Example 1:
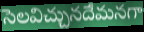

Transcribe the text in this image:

సెలవిచ్చునదేమనగా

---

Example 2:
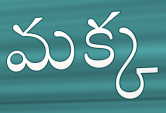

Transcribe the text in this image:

మక్క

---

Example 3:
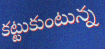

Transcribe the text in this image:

కట్టుకుంటున్న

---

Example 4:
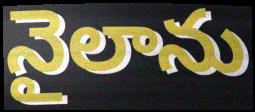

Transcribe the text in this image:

నైలాను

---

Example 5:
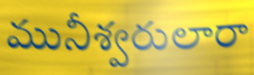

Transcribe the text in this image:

మునీశ్వరులారా